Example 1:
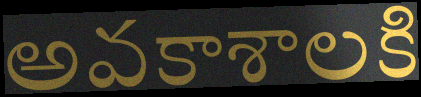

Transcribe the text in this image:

అవకాశాలకి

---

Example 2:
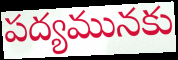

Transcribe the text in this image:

పద్యమునకు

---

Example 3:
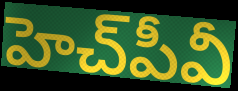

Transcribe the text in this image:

హెచ్‌పీవీ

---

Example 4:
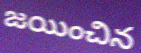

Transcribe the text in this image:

జయించిన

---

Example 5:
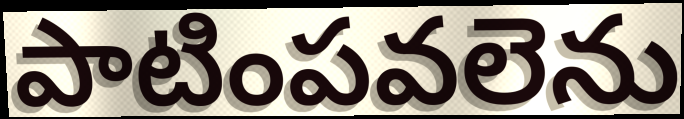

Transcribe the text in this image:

పాటింపవలెను